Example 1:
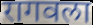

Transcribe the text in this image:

रागवला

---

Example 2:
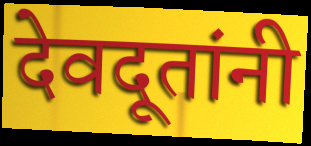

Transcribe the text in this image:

देवदूतांनी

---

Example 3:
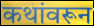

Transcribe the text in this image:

कथांवरून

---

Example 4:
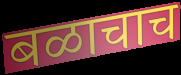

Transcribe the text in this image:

बळाचाच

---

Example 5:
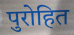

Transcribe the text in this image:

पुरोहित